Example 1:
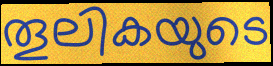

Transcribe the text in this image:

തൂലികയുടെ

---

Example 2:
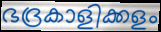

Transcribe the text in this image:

ഭദ്രകാളിക്കളം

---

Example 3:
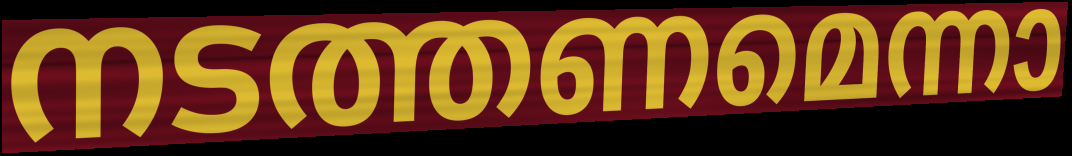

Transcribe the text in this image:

നടത്തണമെന്നാ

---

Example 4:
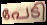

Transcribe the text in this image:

പേടി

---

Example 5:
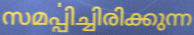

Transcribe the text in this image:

സമൎപ്പിച്ചിരിക്കുന്ന